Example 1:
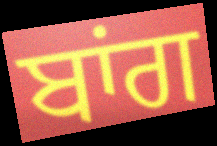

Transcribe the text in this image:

ਬਾਂਗ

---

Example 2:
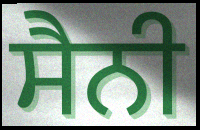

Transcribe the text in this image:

ਸੈਨੀ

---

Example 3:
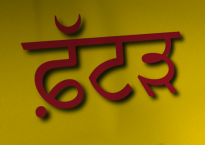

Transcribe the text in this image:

ਫ਼ੱਟੜ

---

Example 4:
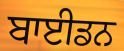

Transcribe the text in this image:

ਬਾਈਡਨ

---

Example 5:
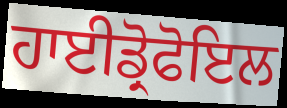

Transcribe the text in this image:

ਹਾਈਡ੍ਰੋਫੋਇਲ